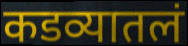
कडव्यातलं